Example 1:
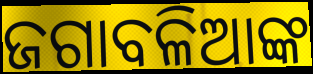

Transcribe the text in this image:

ଜଗାବଳିଆଙ୍କ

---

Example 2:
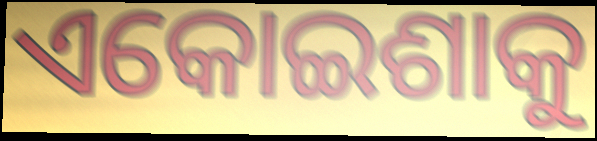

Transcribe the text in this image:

ଏକୋଇଶାକୁ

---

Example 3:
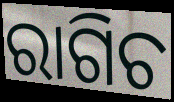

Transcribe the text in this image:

ରାଗିଚ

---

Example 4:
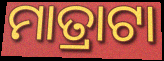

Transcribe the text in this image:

ମାତ୍ରାଟା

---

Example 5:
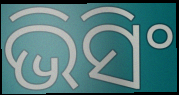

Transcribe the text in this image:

ଭିସିଂ